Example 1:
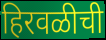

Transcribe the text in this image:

हिरवळीची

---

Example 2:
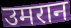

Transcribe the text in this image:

उमरान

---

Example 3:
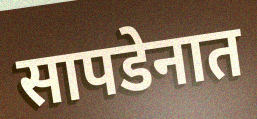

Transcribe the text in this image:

सापडेनात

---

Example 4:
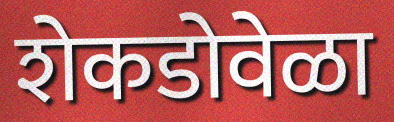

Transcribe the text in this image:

शेकडोवेळा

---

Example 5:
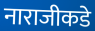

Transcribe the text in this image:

नाराजीकडे